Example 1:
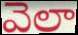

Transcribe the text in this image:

వెలా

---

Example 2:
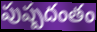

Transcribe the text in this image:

పుష్పదంతం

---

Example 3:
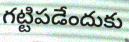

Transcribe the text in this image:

గట్టిపడేందుకు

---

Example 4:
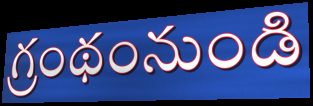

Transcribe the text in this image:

గ్రంథంనుండి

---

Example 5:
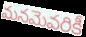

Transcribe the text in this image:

మనమెవరికీ